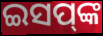
ଇସପ୍‌ଙ୍କ